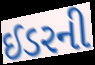
ઈડરની